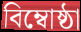
বিম্বোষ্ঠা